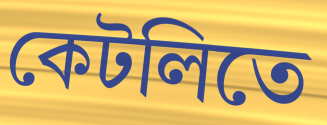
কেটলিতে